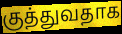
குத்துவதாக